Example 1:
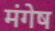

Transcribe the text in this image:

मंगेष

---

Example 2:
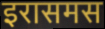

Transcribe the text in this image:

इरासमस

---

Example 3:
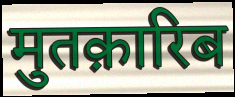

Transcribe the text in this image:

मुतक़ारिब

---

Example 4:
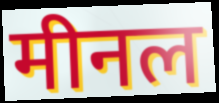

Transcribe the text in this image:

मीनल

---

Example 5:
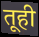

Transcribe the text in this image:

तूही